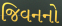
જિવનનો